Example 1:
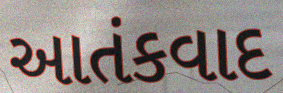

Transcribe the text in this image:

આતંકવાદ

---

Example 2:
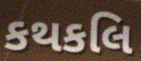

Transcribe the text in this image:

કથકલિ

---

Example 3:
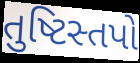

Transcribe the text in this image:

તુષ્ટિસ્તપો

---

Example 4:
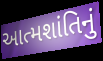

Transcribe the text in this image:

આત્મશાંતિનું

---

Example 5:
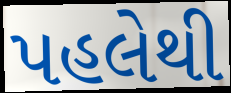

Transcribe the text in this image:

પહલેથી